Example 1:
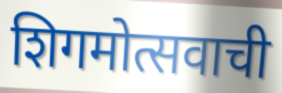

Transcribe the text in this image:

शिगमोत्सवाची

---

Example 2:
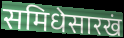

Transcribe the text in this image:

समिधेसारखं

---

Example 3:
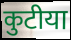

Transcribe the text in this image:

कुटीया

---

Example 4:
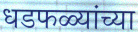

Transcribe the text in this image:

धडफळ्यांच्या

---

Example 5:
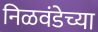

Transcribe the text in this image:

निळवंडेच्या